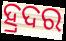
ହ୍ରଦର